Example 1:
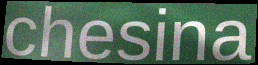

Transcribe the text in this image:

chesina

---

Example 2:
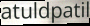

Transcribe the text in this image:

atuldpatil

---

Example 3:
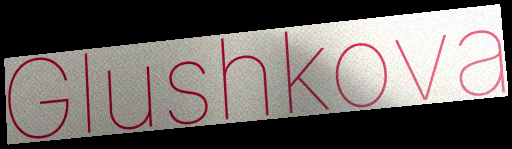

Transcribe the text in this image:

Glushkova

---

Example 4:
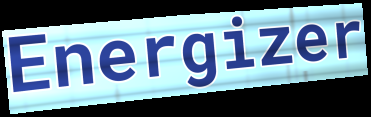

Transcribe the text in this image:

Energizer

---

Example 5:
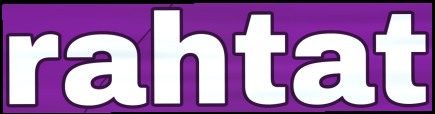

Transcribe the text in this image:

rahtat